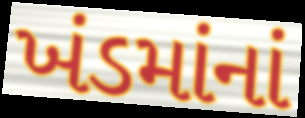
ખંડમાંનાં